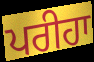
ਪਰੀਹਾ